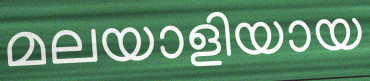
മലയാളിയായ